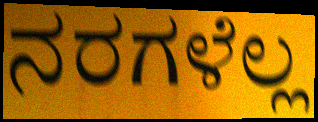
ನರಗಳೆಲ್ಲ